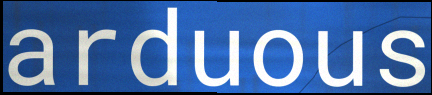
arduous